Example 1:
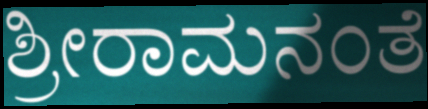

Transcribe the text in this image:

ಶ್ರೀರಾಮನಂತೆ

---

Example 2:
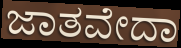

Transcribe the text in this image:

ಜಾತವೇದಾ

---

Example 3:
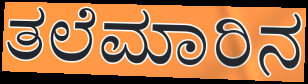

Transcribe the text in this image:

ತಲೆಮಾರಿನ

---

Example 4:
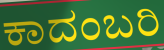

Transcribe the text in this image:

ಕಾದಂಬರಿ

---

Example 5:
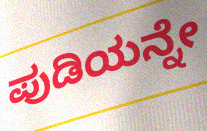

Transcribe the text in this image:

ಪುಡಿಯನ್ನೇ